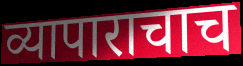
व्यापाराचाच